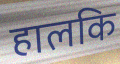
हालकि